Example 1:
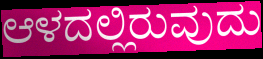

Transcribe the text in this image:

ಆಳದಲ್ಲಿರುವುದು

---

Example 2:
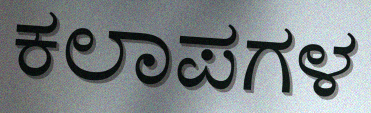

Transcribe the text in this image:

ಕಲಾಪಗಳ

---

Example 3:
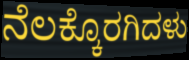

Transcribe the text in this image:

ನೆಲಕ್ಕೊರಗಿದಳು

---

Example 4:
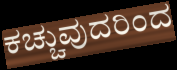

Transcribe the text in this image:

ಕಚ್ಚುವುದರಿಂದ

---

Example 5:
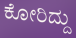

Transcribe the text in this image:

ಕೋರಿದ್ದು